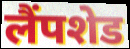
लैंपशेड